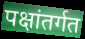
पक्षांतर्गत